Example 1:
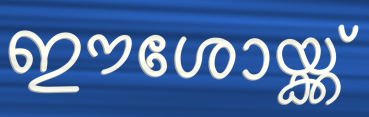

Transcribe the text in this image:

ഈശോയ്ക്ക്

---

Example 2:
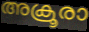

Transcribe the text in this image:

അക്രൂരാ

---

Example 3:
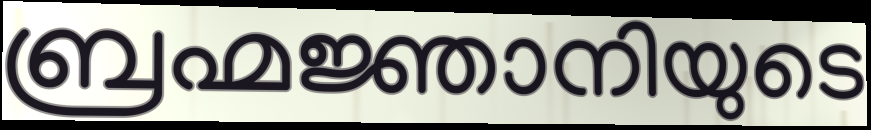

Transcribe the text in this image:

ബ്രഹ്മജ്ഞാനിയുടെ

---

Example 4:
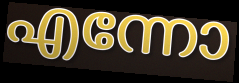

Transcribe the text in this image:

എന്നോ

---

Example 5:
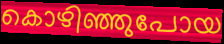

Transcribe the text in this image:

കൊഴിഞ്ഞുപോയ